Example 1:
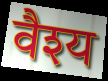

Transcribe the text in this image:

वैश्य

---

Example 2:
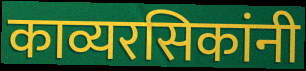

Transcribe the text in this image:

काव्यरसिकांनी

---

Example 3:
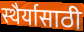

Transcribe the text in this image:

स्थैर्यासाठी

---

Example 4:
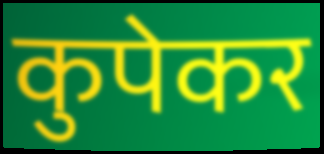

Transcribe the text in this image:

कुपेकर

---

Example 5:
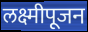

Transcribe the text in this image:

लक्ष्मीपूजन